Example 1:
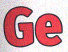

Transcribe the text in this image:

Ge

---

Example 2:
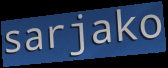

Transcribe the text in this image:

sarjako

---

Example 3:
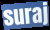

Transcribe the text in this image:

suraj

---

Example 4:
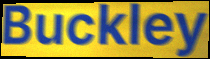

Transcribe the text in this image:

Buckley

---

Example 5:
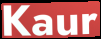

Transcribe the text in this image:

Kaur